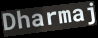
Dharmaj